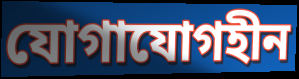
যোগাযোগহীন